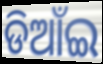
ଡିଆଁଇ